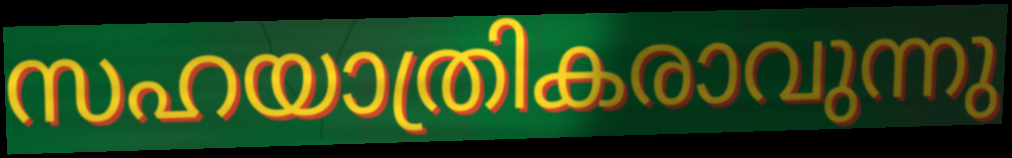
സഹയാത്രികരാവുന്നു